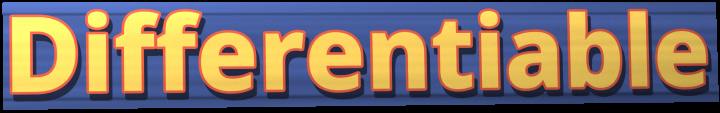
Differentiable